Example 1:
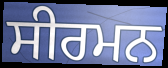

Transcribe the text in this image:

ਸੀਰਮਨ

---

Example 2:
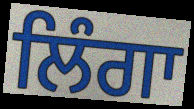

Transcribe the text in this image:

ਲਿੰਗਾ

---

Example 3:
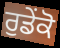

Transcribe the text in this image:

ਰੁਡੇਂਕੋ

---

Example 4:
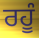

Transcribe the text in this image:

ਰਹੂੰ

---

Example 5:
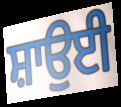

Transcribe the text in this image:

ਸ਼ਾਉਈ